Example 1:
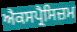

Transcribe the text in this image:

ਐਕਸਪ੍ਰੈਸਿਜ਼ਮ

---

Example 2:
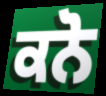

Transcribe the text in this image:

ਕਨੋ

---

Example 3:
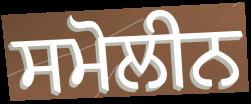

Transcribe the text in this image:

ਸਮੋਲੀਨ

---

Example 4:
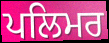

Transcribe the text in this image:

ਪਲਿਮਰ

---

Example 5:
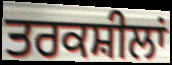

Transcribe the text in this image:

ਤਰਕਸ਼ੀਲਾਂ